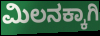
ಮಿಲನಕ್ಕಾಗಿ